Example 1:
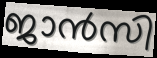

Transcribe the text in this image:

ജാൻസി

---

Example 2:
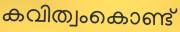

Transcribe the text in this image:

കവിത്വംകൊണ്ട്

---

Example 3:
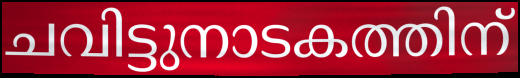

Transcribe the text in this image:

ചവിട്ടുനാടകത്തിന്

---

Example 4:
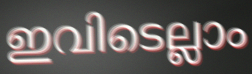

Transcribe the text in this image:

ഇവിടെല്ലാം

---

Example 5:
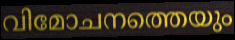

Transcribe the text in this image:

വിമോചനത്തെയും